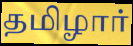
தமிழார்